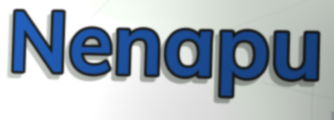
Nenapu